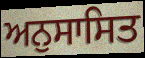
ਅਨੁਸਾਸਿਤ